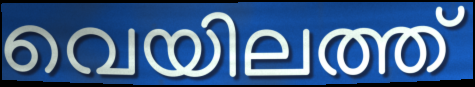
വെയിലത്ത്